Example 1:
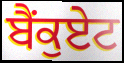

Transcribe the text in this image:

ਬੈਂਕੁਏਟ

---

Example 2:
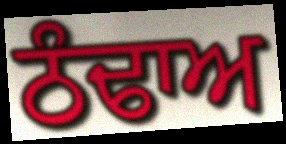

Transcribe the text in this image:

ਠੰਢਾਅ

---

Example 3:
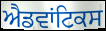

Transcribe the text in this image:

ਐਡਵਾਂਟਿਕਸ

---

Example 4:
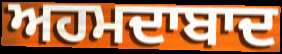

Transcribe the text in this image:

ਅਹਮਦਾਬਾਦ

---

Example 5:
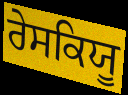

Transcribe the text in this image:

ਰੇਸਕਿਯੂ